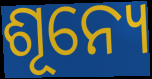
ଶୂନ୍ୟେ